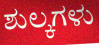
ಶುಲ್ಕಗಳು